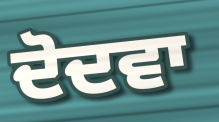
ਦੋਦਵਾ